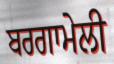
ਬਰਗਾਮੇਲੀ